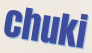
chuki